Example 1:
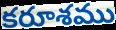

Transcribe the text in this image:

కరూశము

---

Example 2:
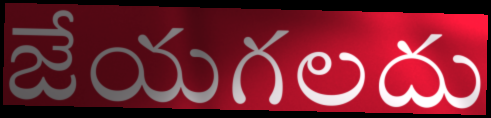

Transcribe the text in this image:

జేయగలదు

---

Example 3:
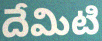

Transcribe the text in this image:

దేమిటి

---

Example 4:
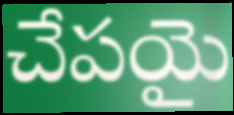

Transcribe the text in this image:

చేపయై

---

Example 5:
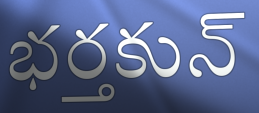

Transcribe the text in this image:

భర్తకున్